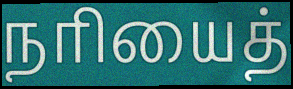
நரியைத்